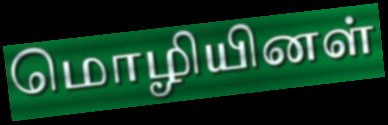
மொழியினள்